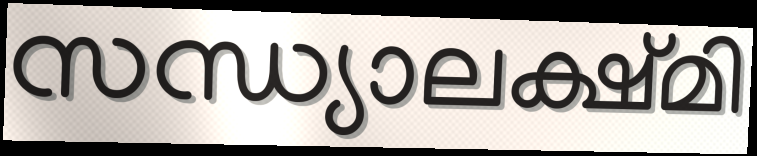
സന്ധ്യാലക്ഷ്മി